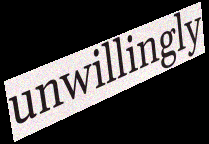
unwillingly